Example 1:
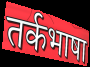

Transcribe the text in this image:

तर्कभाषा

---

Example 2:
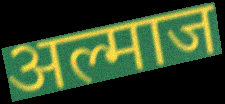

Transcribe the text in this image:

अल्माज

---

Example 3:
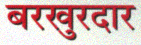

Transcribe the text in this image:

बरखुरदार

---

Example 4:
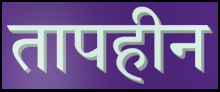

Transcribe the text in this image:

तापहीन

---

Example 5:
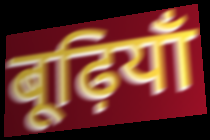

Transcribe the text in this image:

बूढ़ियाँ